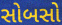
સોબસો